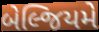
બેલ્જિયમે